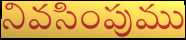
నివసింపుము